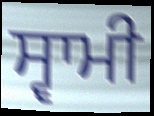
ਸ੍ਵਾਮੀ